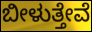
ಬೀಳುತ್ತೇವೆ